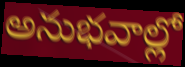
అనుభవాల్లో